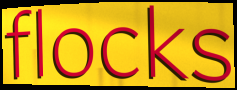
flocks